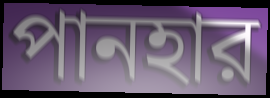
পানহার